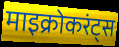
माइक्रोकरंट्स